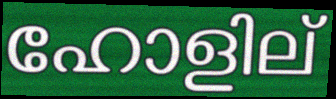
ഹോളില്